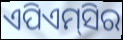
ଏପିଏମ୍‌ସିର